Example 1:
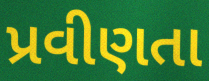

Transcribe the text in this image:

પ્રવીણતા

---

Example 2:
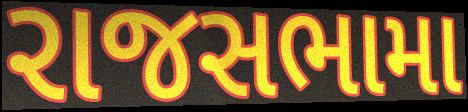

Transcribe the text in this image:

રાજસભામા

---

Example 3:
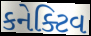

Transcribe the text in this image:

કનેક્ટિવ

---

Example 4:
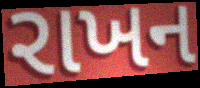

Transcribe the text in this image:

રાખન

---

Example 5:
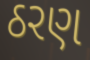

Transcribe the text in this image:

ઠરણ